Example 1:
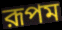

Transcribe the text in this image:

রূপম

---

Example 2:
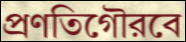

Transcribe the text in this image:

প্রণতিগৌরবে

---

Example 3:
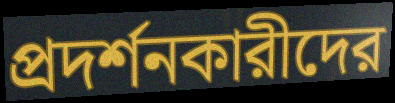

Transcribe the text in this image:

প্রদর্শনকারীদের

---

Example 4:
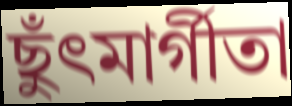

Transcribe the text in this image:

ছুঁৎমার্গীতা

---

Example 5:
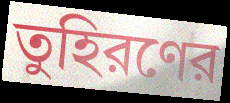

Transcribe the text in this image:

তুহিরণের